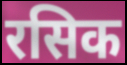
रसिक